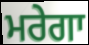
ਮਰੇਗਾ